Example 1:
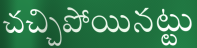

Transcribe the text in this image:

చచ్చిపోయినట్టు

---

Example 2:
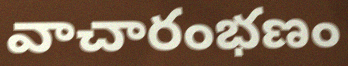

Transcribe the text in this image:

వాచారంభణం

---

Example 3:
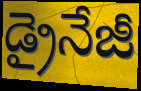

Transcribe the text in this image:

డ్రైనేజీ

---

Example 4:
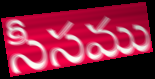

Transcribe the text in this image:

సీసము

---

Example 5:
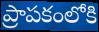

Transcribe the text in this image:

ప్రాపకంలోకి